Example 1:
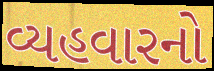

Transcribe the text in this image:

વ્યહવારનો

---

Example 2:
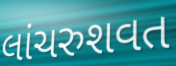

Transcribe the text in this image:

લાંચરુશવત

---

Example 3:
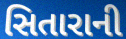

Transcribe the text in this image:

સિતારાની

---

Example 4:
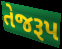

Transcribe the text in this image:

તેજરૂપ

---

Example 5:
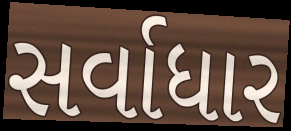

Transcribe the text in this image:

સર્વાધાર